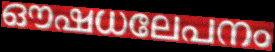
ഔഷധലേപനം